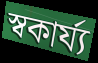
স্বকার্য্য